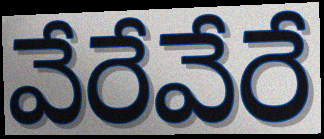
వేరేవేరే